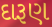
દારૂણ